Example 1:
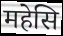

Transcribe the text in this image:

महेसि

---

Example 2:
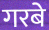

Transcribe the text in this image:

गरबे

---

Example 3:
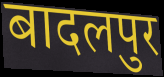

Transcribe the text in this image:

बादलपुर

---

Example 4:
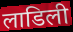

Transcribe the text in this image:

लाडिली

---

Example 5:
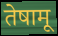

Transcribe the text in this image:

तेषामू